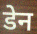
डेन